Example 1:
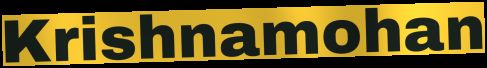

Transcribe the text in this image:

Krishnamohan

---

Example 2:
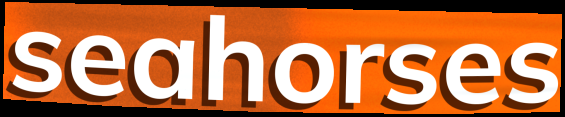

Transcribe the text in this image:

seahorses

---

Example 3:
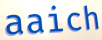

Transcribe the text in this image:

aaich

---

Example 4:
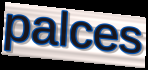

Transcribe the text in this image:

palces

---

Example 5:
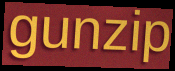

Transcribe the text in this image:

gunzip